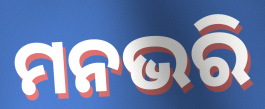
ମନଭରି